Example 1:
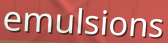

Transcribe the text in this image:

emulsions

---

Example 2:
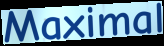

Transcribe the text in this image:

Maximal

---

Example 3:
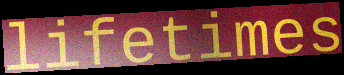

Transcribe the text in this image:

lifetimes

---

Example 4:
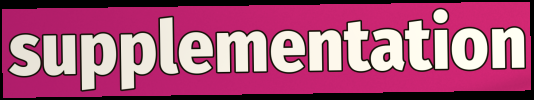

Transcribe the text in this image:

supplementation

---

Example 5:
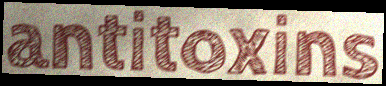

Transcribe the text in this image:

antitoxins